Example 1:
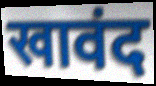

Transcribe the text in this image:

खावंद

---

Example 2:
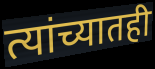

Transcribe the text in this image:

त्यांच्यातही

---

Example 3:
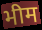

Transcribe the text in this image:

भीम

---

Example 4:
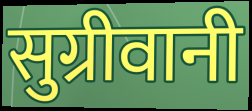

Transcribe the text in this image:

सुग्रीवानी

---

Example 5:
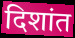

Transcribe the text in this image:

दिशांत